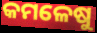
କମଳେଷୁ